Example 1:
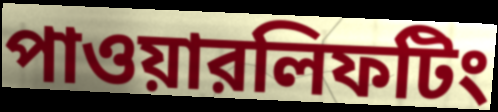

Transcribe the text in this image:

পাওয়ারলিফটিং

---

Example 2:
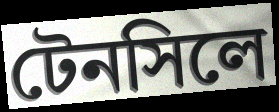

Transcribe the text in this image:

টেনসিলে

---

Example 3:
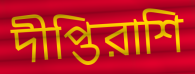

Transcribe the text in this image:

দীপ্তিরাশি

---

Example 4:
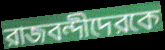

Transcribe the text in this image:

রাজবন্দীদেরকে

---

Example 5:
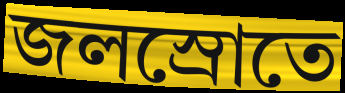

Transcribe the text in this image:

জলস্রোতে